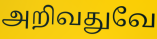
அறிவதுவே